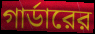
গার্ডারের